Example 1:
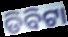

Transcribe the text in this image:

ଡିବିଟା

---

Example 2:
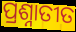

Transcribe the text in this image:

ପ୍ରଶ୍ନାତୀତ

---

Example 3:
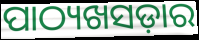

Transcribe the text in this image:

ପାଠ୍ୟଖସଡ଼ାର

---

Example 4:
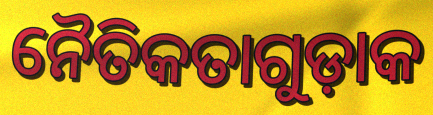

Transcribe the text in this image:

ନୈତିକତାଗୁଡ଼ାକ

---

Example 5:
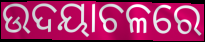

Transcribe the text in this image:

ଉଦୟାଚଳରେ